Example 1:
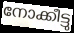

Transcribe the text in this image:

നോക്കീട്ടു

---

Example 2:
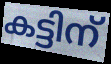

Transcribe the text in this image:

കട്ടിന്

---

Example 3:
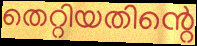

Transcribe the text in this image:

തെറ്റിയതിന്റെ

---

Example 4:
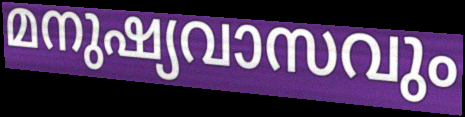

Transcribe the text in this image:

മനുഷ്യവാസവും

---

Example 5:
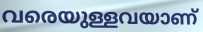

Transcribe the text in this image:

വരെയുള്ളവയാണ്